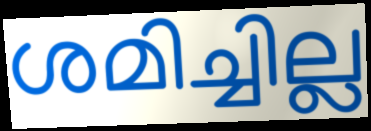
ശമിച്ചില്ല